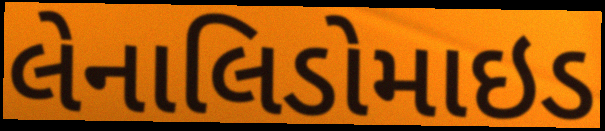
લેનાલિડોમાઇડ